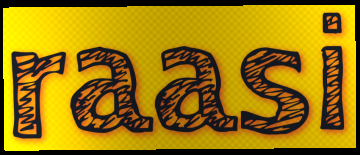
raasi